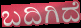
ಬದಿಗಿದೆ